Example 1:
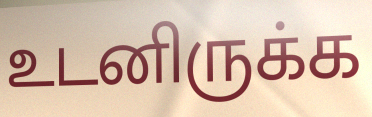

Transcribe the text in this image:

உடனிருக்க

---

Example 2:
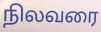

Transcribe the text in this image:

நிலவரை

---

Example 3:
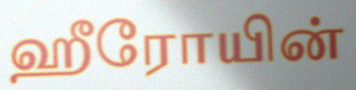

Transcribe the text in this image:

ஹீரோயின்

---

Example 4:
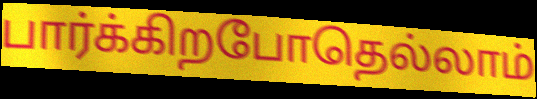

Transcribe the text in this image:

பார்க்கிறபோதெல்லாம்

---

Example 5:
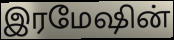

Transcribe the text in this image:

இரமேஷின்